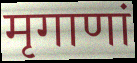
मृगाणां